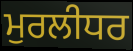
ਮੁਰਲੀਧਰ